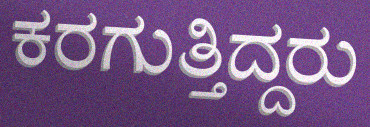
ಕರಗುತ್ತಿದ್ದರು